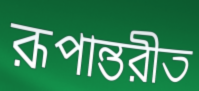
রূপান্তরীত